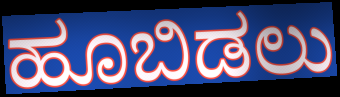
ಹೂಬಿಡಲು